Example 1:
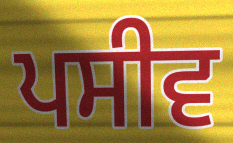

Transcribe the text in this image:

ਪਸੀਵ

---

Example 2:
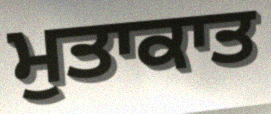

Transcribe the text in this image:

ਮੁਤਾਕਾਤ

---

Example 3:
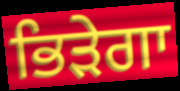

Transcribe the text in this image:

ਭਿੜੇਗਾ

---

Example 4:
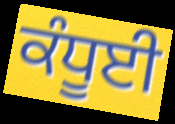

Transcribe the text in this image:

ਕੰਧੂਈ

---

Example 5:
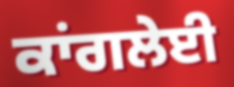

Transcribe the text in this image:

ਕਾਂਗਲੇਈ